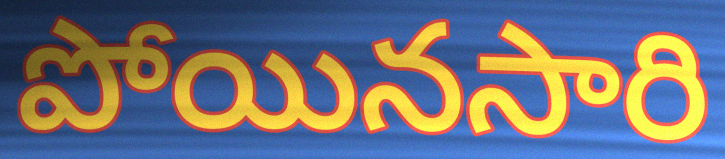
పోయినసారి